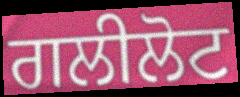
ਗਲੀਲੋਟ